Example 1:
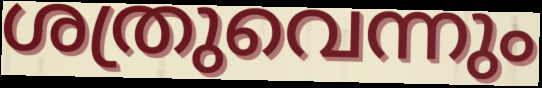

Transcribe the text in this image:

ശത്രുവെന്നും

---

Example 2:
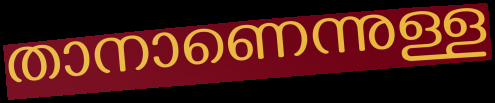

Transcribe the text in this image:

താനാണെന്നുള്ള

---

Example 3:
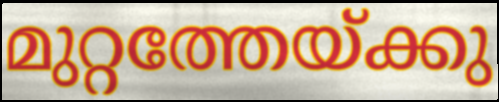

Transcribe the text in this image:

മുറ്റത്തേയ്ക്കു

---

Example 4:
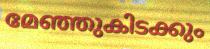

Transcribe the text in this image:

മേഞ്ഞുകിടക്കും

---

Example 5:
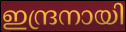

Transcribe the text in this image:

ഇന്ദ്രനായി